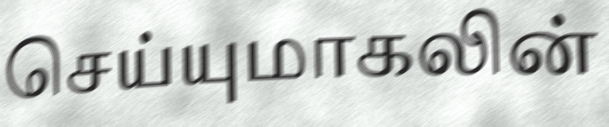
செய்யுமாகலின்